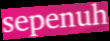
sepenuh